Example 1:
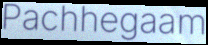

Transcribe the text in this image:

Pachhegaam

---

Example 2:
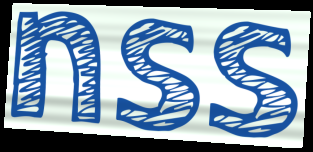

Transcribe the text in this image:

nss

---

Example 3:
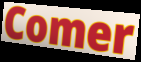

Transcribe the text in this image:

Comer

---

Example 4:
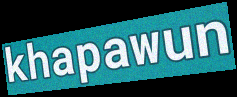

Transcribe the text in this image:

khapawun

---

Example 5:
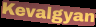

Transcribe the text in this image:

Kevalgyan